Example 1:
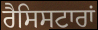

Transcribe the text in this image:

ਰੈਸਿਸਟਾਰਾਂ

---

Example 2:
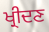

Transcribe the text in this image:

ਖ੍ਰੀਦਣ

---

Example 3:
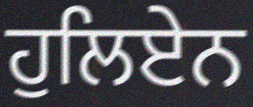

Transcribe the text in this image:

ਹੁਲਿਏਨ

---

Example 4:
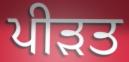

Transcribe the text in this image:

ਪੀਡ਼ਤ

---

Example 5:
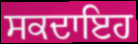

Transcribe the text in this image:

ਸਕਦਾਇਹ